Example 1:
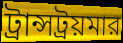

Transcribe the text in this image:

ট্রান্সট্রয়মার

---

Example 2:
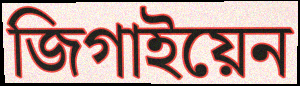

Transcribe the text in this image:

জিগাইয়েন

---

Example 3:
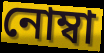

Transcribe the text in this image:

নোম্বা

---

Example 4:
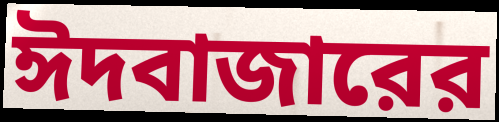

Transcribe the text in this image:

ঈদবাজারের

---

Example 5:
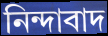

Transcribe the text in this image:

নিন্দাবাদ